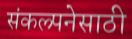
संकल्पनेसाठी